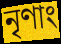
নৃণাং